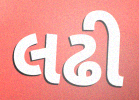
લઢી